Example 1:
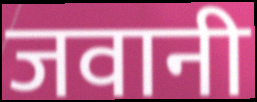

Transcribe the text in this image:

जवानी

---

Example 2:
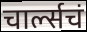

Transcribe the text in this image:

चार्ल्सचं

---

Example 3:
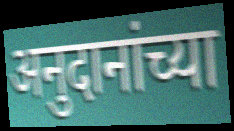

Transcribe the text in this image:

अनुदानांच्या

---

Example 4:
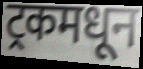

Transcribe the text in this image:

ट्रकमधून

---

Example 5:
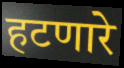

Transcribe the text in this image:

हटणारे